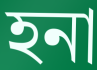
হনা